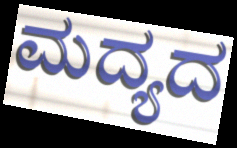
ಮದ್ಯದ